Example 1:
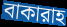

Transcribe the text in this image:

বাকারাহ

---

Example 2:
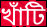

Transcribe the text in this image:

খাঁটি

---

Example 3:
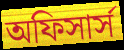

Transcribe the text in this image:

অফিসার্স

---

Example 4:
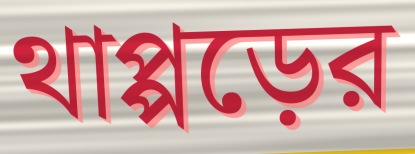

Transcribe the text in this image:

থাপ্পড়ের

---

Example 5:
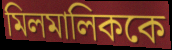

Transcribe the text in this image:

মিলমালিককে